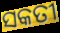
ସକତୀ